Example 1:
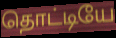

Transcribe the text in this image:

தொட்டியே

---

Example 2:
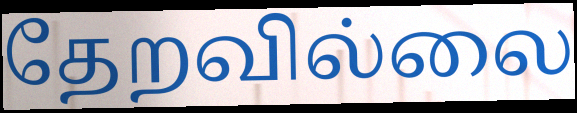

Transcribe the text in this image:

தேறவில்லை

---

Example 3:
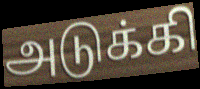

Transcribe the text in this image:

அடுக்கி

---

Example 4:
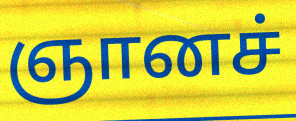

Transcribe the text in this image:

ஞானச்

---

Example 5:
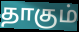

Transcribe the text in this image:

தாகும்